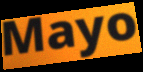
Mayo